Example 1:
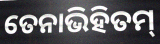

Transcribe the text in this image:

ତେନାଭିହିତମ୍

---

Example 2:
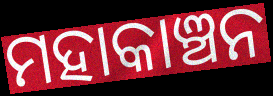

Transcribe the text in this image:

ମହାକାଞ୍ଚନ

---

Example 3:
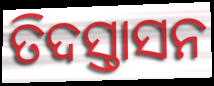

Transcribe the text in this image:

ତିଦସ୍ତାସନ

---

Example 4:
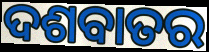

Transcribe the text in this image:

ଦଶବାତର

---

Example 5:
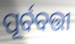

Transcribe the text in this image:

ପୂର୍ବବତ୍ତୀ